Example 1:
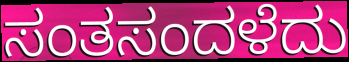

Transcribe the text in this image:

ಸಂತಸಂದಳೆದು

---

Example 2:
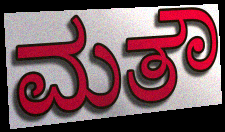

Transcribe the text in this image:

ಮತೌ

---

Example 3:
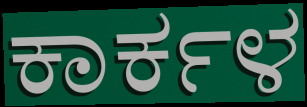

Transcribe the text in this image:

ಕಾರ್ಕಳ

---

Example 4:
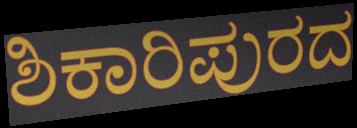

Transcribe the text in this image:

ಶಿಕಾರಿಪುರದ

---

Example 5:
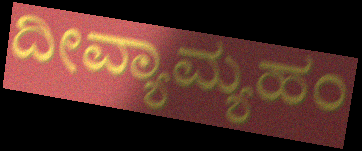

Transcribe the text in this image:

ದೀವ್ಯಾಮ್ಯಹಂ